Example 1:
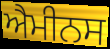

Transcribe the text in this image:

ਐਮੀਨਸ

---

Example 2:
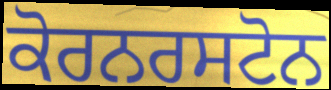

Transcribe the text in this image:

ਕੋਰਨਰਸਟੋਨ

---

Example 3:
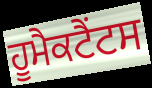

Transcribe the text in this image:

ਹੂਮੈਕਟੈਂਟਸ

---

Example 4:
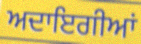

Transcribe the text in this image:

ਅਦਾਇਗੀਆਂ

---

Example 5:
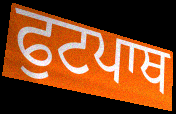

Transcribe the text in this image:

ਫੁਟਪਾਥ